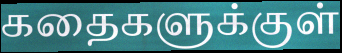
கதைகளுக்குள்